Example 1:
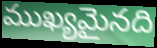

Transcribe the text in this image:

ముఖ్యమైనది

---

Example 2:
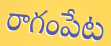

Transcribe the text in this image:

రాగంపేట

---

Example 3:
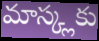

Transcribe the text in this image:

మాస్క్లకు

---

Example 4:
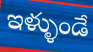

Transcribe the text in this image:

ఇళ్ళుండే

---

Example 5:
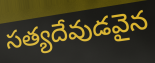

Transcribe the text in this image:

సత్యదేవుడవైన